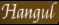
Hangul